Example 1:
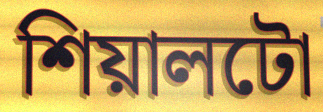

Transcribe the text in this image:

শিয়ালটো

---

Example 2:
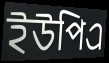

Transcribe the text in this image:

ইউপিএ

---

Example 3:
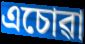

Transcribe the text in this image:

এচোৱা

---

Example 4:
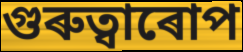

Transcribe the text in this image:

গুৰুত্বাৰোপ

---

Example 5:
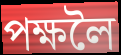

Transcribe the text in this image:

পক্ষলৈ